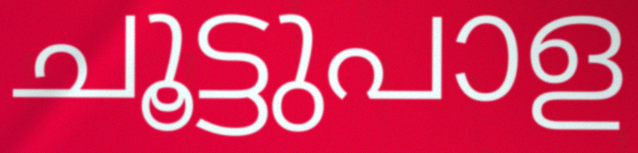
ചൂട്ടുപാള